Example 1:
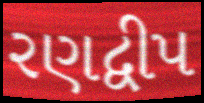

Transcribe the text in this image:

રણદ્વીપ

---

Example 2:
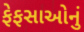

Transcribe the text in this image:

ફેફસાઓનું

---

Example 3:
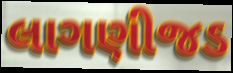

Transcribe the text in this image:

લાગણીજડ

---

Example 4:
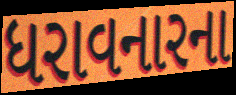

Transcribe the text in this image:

ધરાવનારના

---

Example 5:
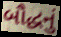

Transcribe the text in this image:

બૌદ્ધનું